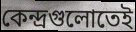
কেন্দ্রগুলোতেই